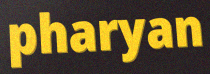
pharyan